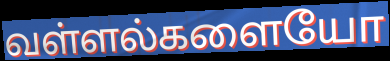
வள்ளல்களையோ